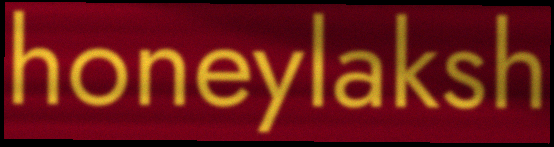
honeylaksh